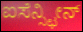
ಐಸೆನ್ಸ್ಟೀನ್